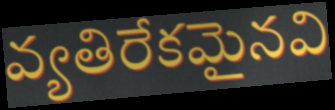
వ్యతిరేకమైనవి